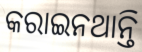
କରାଇନଥାନ୍ତି